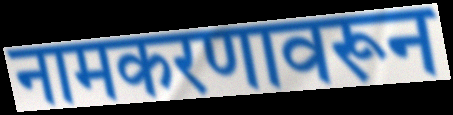
नामकरणावरून